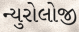
ન્યુરોલોજી